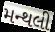
મન્થલી